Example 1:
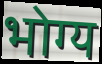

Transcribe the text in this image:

भोग्य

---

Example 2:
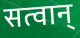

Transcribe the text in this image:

सत्वान्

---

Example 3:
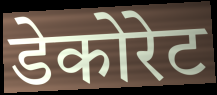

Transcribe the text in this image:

डेकोरेट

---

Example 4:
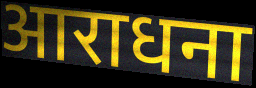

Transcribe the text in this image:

आराधना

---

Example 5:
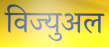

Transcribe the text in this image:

विज्युअल